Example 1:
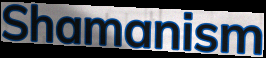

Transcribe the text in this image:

Shamanism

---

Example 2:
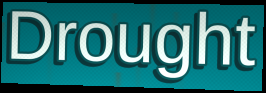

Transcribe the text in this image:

Drought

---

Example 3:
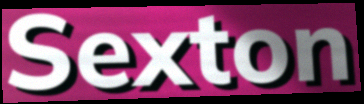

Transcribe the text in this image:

Sexton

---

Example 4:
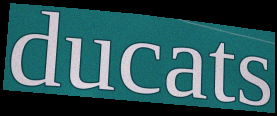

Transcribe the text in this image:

ducats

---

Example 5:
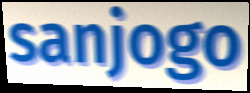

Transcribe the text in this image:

sanjogo